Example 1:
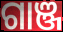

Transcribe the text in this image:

ଗାଞ୍ଜ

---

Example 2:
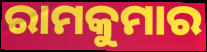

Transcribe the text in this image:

ରାମକୁମାର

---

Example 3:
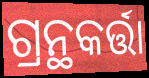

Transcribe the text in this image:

ଗ୍ରନ୍ଥକର୍ତ୍ତା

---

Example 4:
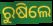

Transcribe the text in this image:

ରୁଷିଲେ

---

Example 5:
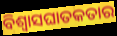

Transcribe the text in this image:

ବିଶ୍ଵାସଘାତକତାର